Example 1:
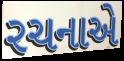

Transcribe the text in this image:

રચનાએ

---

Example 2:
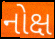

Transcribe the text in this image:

નોક્ષ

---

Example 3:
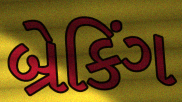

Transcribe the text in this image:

બ્રેકિંગ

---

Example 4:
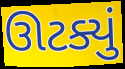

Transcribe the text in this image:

ઊટક્યું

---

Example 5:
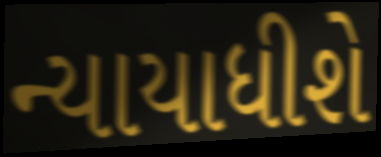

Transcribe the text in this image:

ન્યાયાધીશે